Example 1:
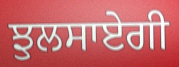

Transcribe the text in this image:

ਝੁਲਸਾਏਗੀ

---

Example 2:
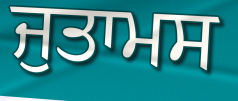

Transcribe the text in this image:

ਜੁਤਾਮਸ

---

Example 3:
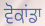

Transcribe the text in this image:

ਵੋਕਾਂਡਾ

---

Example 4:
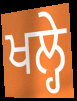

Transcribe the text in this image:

ਖਲ੍ਹੇ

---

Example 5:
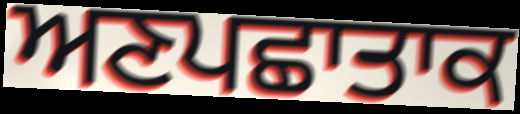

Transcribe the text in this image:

ਅਣਪਛਾਤਾਕ